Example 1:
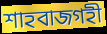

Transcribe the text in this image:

শাহবাজগহী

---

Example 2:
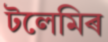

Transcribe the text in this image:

টলেমিৰ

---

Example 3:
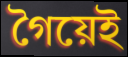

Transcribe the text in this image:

গৈয়েই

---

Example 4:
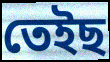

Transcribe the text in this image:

তেইছ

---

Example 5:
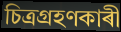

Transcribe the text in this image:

চিত্ৰগ্ৰহণকাৰী